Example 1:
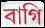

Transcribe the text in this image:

বাগি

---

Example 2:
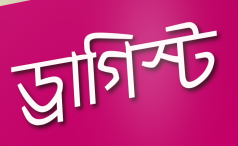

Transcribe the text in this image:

ড্রাগিস্ট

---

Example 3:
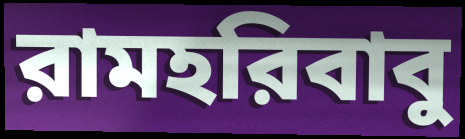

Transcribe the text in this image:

রামহরিবাবু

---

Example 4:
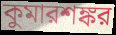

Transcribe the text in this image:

কুমারশঙ্কর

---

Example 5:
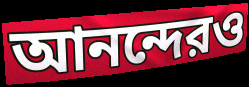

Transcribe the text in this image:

আনন্দেরও